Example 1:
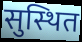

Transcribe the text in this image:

सुस्थित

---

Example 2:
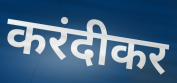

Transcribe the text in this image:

करंदीकर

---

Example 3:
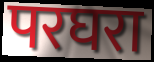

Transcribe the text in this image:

परघरा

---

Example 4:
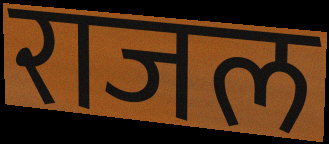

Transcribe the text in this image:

राजल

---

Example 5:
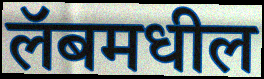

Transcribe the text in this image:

लॅबमधील